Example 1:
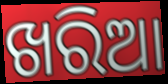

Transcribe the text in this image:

ଖରିଆ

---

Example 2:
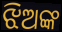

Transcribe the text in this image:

ଝିଅଙ୍କ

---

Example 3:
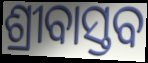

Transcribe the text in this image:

ଶ୍ରୀବାସ୍ତବ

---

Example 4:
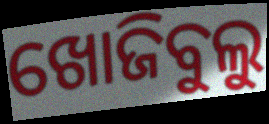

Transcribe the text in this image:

ଖୋଜିବୁଲୁ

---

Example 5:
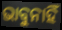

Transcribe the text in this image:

ଭାବୁନାହିଁ